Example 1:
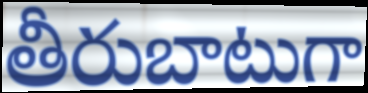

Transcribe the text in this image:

తీరుబాటుగా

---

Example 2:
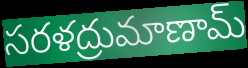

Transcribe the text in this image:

సరళద్రుమాణామ్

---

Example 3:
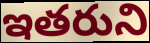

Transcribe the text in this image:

ఇతరుని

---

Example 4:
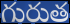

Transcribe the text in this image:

గురుత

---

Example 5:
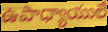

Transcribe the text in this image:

ఉపాధ్యాయులే